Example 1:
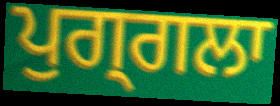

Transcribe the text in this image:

ਪੁਗ੍ਗਲਾ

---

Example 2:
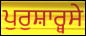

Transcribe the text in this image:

ਪੁਰੁਸ਼ਾਰ੍ਥਸੇ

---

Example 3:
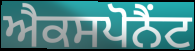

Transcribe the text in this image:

ਐਕਸਪੋਨੈਂਟ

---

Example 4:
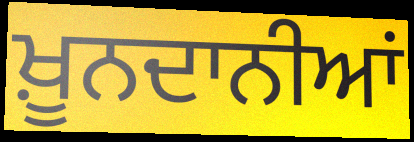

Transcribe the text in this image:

ਖ਼ੂਨਦਾਨੀਆਂ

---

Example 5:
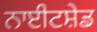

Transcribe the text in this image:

ਨਾਈਟਸ਼ੇਡ